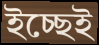
ইচ্ছেই